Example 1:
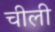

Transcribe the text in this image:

चीली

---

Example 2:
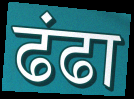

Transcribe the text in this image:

ढंढा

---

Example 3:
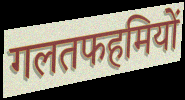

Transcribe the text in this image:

गलतफहमियों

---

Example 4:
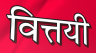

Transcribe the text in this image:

वित्तयी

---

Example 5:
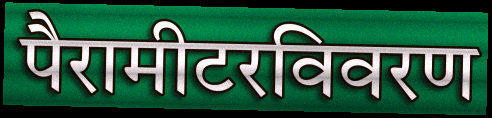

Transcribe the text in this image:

पैरामीटरविवरण